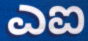
ಎಐ